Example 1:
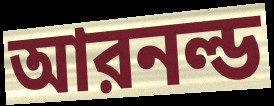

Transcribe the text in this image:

আরনল্ড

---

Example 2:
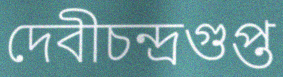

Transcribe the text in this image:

দেবীচন্দ্রগুপ্ত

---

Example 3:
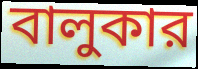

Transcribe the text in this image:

বালুকার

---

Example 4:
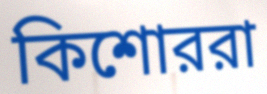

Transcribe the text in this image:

কিশোররা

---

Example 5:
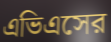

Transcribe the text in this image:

এভিএসের